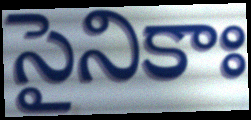
సైనికాః